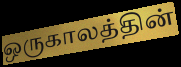
ஒருகாலத்தின்